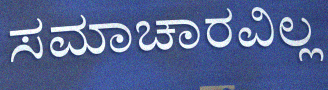
ಸಮಾಚಾರವಿಲ್ಲ